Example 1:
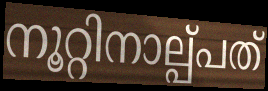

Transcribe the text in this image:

നൂറ്റിനാല്പ്പത്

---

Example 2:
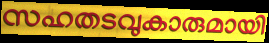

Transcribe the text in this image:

സഹതടവുകാരുമായി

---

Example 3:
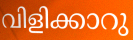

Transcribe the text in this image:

വിളിക്കാറു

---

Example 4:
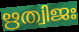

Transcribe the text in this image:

ഋത്വിജഃ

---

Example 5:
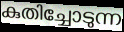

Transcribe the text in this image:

കുതിച്ചോടുന്ന